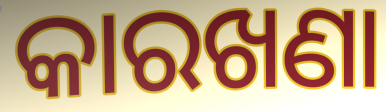
କାରଖଣା